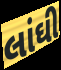
લાંઘી